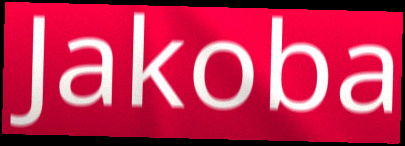
Jakoba